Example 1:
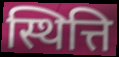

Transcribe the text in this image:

स्थित्ति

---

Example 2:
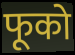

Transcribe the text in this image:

फूको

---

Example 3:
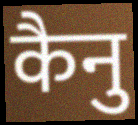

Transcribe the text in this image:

कैनु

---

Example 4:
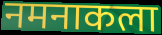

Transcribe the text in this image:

नमनाकला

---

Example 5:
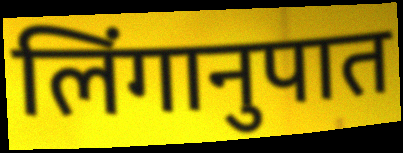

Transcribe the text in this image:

लिंगानुपात